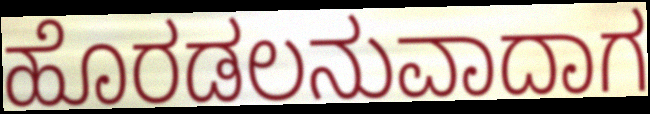
ಹೊರಡಲನುವಾದಾಗ